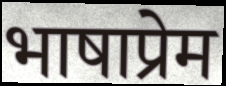
भाषाप्रेम